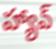
హ్యావ్